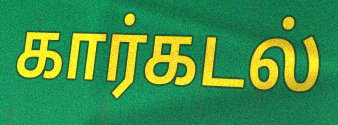
கார்கடல்